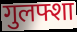
गुलफ्शा